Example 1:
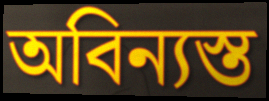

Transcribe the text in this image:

অবিন্যস্ত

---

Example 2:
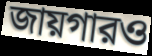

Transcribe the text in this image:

জায়গারও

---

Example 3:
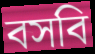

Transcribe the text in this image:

বসবি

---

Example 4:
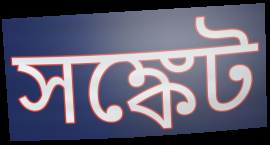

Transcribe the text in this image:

সঙ্কেট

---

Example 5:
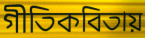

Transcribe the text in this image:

গীতিকবিতায়